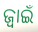
ଜ୍ବାଇଁ